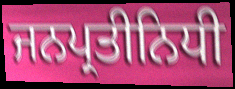
ਜਨਪ੍ਰਤੀਨਿਧੀ